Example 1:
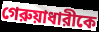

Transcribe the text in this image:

গেরুয়াধারীকে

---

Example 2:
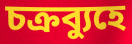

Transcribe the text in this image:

চক্রব্যুহে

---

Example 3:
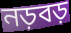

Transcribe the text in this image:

নড়বড়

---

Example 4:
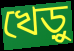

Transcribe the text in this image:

খেড়ু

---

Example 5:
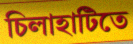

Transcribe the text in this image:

চিলাহাটিতে